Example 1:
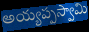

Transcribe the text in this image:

అయ్యప్పస్వామి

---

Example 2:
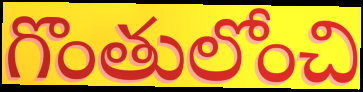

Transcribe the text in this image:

గొంతులోంచి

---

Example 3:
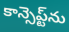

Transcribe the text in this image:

కాన్సెప్ట్‌ను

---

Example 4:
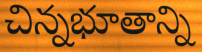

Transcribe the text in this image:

చిన్నభూతాన్ని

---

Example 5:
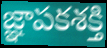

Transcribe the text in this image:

జ్ఞాపకశక్తి